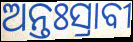
ଅନ୍ତଃସ୍ରାବୀ